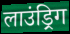
लाउंड्रिग